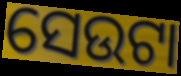
ସେଉଟା